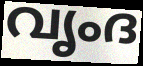
വൃംദ